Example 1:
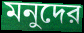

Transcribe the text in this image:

মনুদের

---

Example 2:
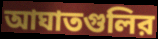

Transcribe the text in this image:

আঘাতগুলির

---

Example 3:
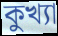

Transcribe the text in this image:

কুখ্যা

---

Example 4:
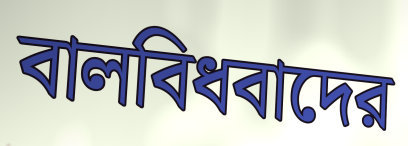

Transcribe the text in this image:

বালবিধবাদের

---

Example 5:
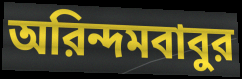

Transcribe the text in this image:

অরিন্দমবাবুর